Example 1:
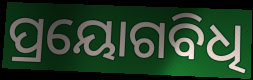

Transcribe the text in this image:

ପ୍ରୟୋଗବିଧି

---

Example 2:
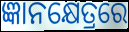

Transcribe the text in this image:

ଜ୍ଞାନକ୍ଷେତ୍ରରେ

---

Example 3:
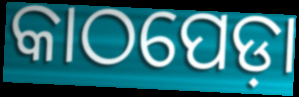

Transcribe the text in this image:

କାଠପେଡ଼ା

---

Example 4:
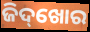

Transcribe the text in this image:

ଜିଦ୍‌ଖୋର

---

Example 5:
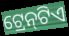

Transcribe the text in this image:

ଟ୍ରେନ୍‌ଟିଏ